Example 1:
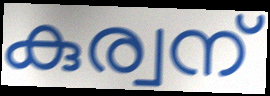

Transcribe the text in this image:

കുര്വന്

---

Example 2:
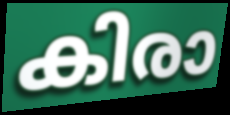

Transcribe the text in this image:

കിരാ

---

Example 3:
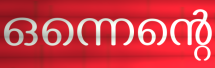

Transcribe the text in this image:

ഒന്നെന്റെ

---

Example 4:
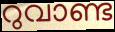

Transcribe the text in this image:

റുവാണ്ട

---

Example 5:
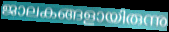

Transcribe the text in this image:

ജാലകങ്ങളായിരുന്നു